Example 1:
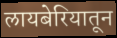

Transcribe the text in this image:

लायबेरियातून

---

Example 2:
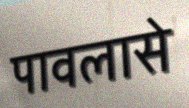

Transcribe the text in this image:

पावलासे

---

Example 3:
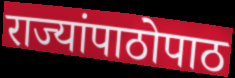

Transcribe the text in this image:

राज्यांपाठोपाठ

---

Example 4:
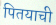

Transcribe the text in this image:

पितयाची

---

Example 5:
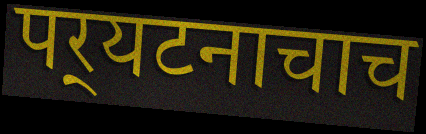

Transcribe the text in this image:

पर्यटनाचाच